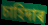
চাহিদাৰ